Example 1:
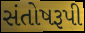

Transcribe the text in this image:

સંતોષરૂપી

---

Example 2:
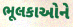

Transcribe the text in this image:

ભૂલકાઓને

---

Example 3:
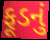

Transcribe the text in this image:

ફૂડનું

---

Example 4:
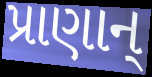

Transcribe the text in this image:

પ્રાણાન્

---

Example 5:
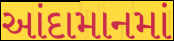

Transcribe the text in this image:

આંદામાનમાં